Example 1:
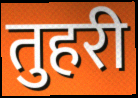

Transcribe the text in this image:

तुहरी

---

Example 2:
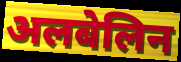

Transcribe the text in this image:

अलबेलिन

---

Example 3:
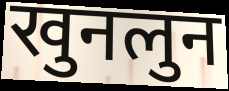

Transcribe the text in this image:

खुनलुन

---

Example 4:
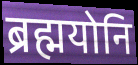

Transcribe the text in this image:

ब्रह्मयोनि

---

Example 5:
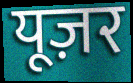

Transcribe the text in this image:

यूज़र